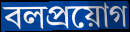
বলপ্রয়োগ